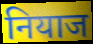
नियाज